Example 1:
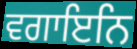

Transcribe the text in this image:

ਵਗਾਇਨਿ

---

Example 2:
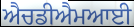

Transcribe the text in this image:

ਐਚਡੀਐਮਆਈ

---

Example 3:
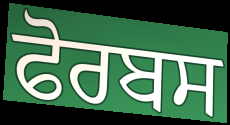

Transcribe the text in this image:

ਫੋਰਬਸ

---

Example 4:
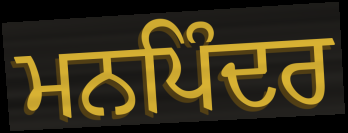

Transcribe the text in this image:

ਮਨਪਿੰਦਰ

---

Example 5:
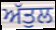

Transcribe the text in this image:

ਅੱਤੁਲ